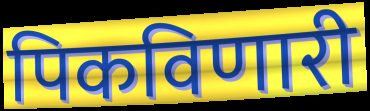
पिकविणारी